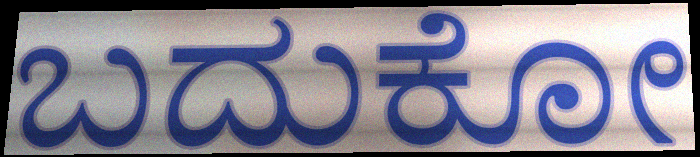
ಬದುಕೋ